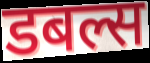
डबल्स